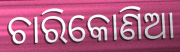
ଚାରିକୋଣିଆ